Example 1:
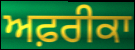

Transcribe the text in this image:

ਅਫ਼ਰੀਕਾ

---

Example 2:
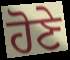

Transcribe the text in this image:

ਹੋਣੇ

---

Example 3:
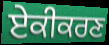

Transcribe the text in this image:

ਏਕੀਕਰਣ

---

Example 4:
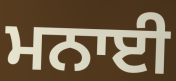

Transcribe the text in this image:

ਮਨਾਈ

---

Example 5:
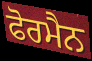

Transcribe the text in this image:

ਫੋਰਮੈਨ